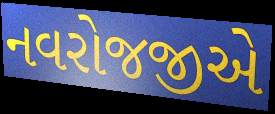
નવરોજજીએ